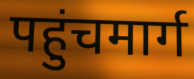
पहुंचमार्ग